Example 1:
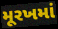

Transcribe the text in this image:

મૂરખમાં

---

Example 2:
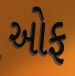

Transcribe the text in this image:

ઓફ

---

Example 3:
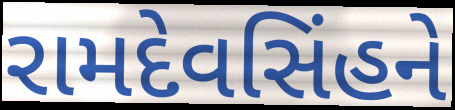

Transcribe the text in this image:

રામદેવસિંહને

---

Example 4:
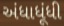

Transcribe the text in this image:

અંધાધૂંધી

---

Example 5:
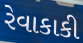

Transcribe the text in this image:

રેવાકાકી